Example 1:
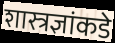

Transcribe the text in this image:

शास्त्रज्ञांकडे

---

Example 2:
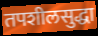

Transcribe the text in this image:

तपशीलसुद्धा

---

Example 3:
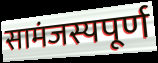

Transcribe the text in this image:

सामंजस्यपूर्ण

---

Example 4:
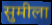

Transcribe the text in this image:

सुमीला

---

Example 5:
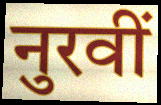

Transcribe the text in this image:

नुरवीं